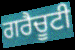
ਗਰੈਚੂਟੀ